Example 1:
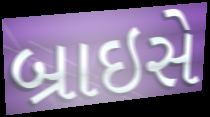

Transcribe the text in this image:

બ્રાઇસે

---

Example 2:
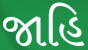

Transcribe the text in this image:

જાહિ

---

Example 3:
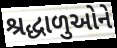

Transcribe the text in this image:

શ્રદ્ધાળુઓને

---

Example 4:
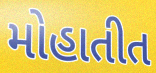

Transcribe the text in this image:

મોહાતીત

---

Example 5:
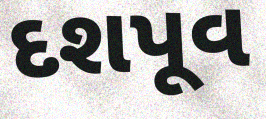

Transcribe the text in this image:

દશપૂવ